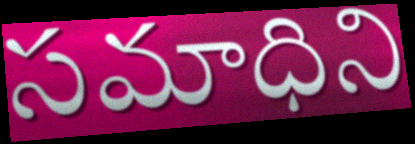
సమాధిని